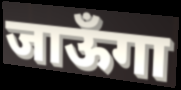
जाऊँगा